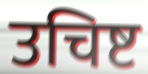
उचिष्ट